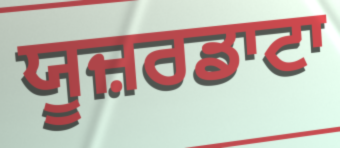
ਯੂਜ਼ਰਡਾਟਾ